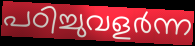
പഠിച്ചുവളർന്ന